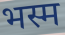
भस्म